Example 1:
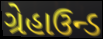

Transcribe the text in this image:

ગ્રેહાઉન્ડ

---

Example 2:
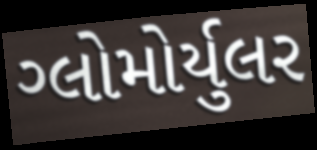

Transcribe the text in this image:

ગ્લોમોર્યુલર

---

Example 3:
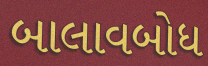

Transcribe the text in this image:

બાલાવબોધ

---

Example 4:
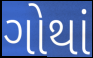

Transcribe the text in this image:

ગોથાં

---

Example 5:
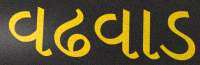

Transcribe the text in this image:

વઢવાડ